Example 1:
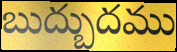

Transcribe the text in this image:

బుద్బుదము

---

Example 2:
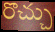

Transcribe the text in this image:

రొచ్చు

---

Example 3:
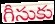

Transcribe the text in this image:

గీసుకు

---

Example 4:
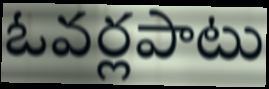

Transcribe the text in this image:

ఓవర్లపాటు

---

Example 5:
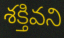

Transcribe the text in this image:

శక్తివని